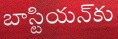
బాస్టియన్‌కు